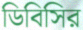
ডিবিসির